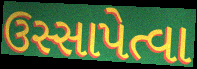
ઉસ્સાપેત્વા